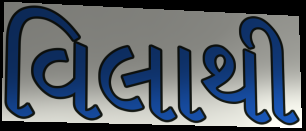
વિલાથી